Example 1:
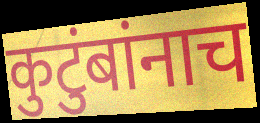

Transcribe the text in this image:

कुटुंबांनाच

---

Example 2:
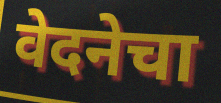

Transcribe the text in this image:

वेदनेचा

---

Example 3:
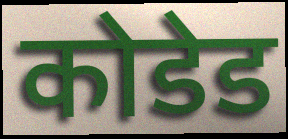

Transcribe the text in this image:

कोडेड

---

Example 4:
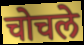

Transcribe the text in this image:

चोचले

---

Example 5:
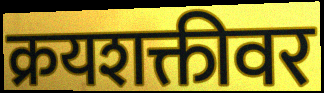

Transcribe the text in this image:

क्रयशक्तीवर